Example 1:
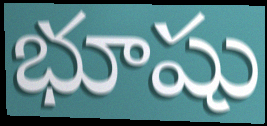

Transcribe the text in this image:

భూషు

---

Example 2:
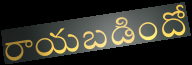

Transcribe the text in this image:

రాయబడిందో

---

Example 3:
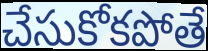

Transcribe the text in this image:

చేసుకోకపోతే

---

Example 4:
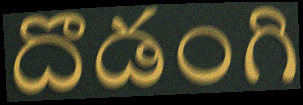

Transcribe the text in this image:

దొడంగి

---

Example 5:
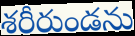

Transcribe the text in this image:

శరీరుండను